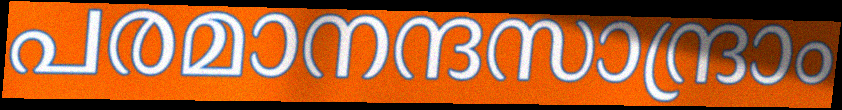
പരമാനന്ദസാന്ദ്രാം